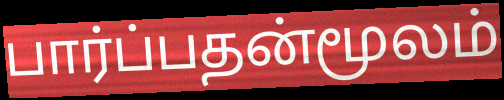
பார்ப்பதன்மூலம்